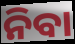
ନିବା